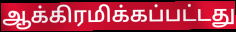
ஆக்கிரமிக்கப்பட்டது